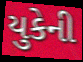
યુકેની